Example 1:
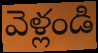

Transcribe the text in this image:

వెళ్లండి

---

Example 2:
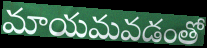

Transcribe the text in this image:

మాయమవడంతో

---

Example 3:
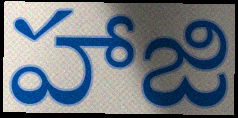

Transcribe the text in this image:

హాజి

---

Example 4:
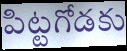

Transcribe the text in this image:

పిట్టగోడకు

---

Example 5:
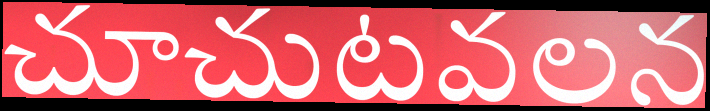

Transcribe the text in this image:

చూచుటవలన